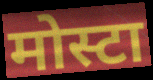
मोस्टा